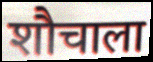
शौचाला